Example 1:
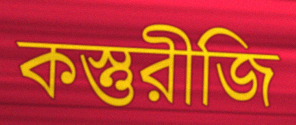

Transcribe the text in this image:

কস্তুরীজি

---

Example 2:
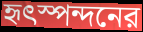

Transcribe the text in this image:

হৃৎস্পন্দনের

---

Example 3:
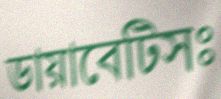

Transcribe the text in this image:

ডায়াবেটিসঃ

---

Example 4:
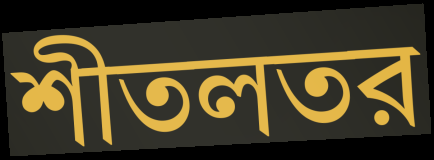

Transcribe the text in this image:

শীতলতর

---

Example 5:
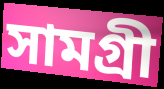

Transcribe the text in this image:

সামগ্রী